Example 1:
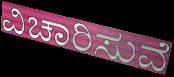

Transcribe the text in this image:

ವಿಚಾರಿಸುವೆ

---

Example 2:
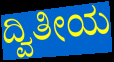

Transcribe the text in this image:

ದ್ವಿತೀಯ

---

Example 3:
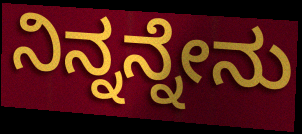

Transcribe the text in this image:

ನಿನ್ನನ್ನೇನು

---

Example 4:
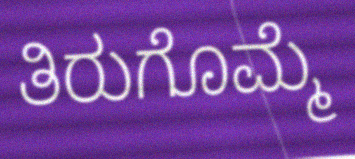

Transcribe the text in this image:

ತಿರುಗೊಮ್ಮೆ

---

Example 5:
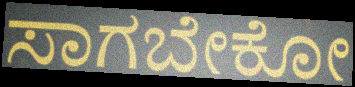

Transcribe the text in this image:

ಸಾಗಬೇಕೋ